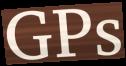
GPs